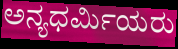
ಅನ್ಯಧರ್ಮಿಯರು